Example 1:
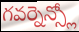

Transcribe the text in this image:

గవర్నెన్స్లో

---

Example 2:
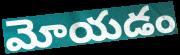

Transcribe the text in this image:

మోయడం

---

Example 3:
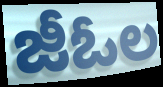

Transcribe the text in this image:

జీఓల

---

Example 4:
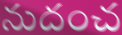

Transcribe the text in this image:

నుదంచ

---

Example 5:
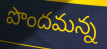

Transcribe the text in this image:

పొందమన్న